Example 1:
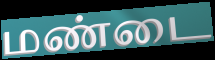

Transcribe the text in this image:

மண்டை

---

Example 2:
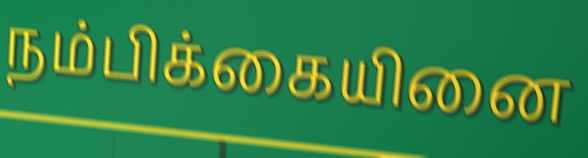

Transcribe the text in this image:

நம்பிக்கையினை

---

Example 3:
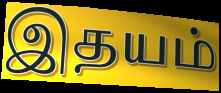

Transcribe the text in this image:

இதயம்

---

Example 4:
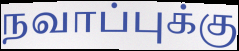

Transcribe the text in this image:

நவாப்புக்கு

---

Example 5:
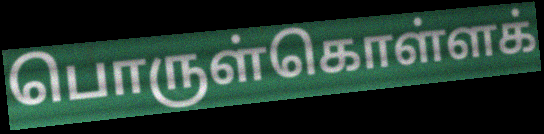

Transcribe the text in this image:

பொருள்கொள்ளக்